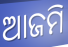
ଆଜମି